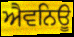
ਐਵਨਿਊ